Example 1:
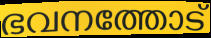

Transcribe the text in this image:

ഭവനത്തോട്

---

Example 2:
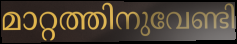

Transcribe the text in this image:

മാറ്റത്തിനുവേണ്ടി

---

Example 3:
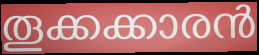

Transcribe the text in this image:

തൂക്കക്കാരൻ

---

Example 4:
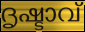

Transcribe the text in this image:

ദൃഷ്ടാവ്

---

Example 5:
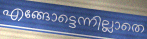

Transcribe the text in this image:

എങ്ങോട്ടെന്നില്ലാതെ